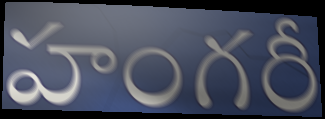
హంగరీ